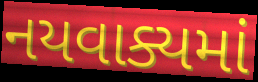
નયવાક્યમાં